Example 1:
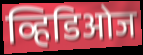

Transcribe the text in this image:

व्हिडिओज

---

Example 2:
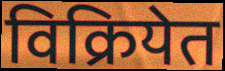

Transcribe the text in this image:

विक्रियेत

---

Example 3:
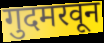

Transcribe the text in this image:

गुदमरवून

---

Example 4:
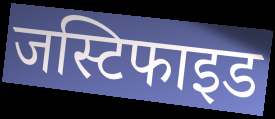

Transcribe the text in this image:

जस्टिफाइड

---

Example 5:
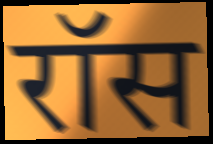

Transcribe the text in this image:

रॉस